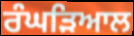
ਰੰਘੜਿਆਲ